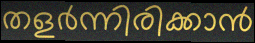
തളർന്നിരിക്കാൻ